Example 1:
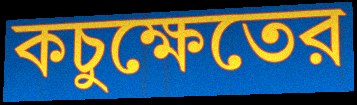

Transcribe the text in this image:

কচুক্ষেতের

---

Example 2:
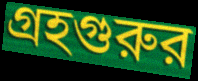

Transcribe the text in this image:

গ্রহগুরুর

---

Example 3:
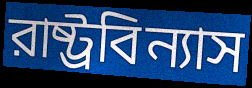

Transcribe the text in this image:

রাষ্ট্রবিন্যাস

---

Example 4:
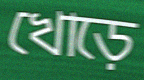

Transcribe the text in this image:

খোড়ে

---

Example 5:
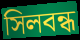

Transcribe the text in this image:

সিলবন্ধ